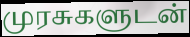
முரசுகளுடன்